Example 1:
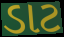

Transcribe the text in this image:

ડાટ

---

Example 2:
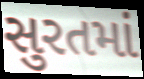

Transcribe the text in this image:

સુરતમાં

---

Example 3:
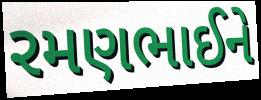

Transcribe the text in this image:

રમણભાઈને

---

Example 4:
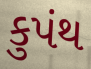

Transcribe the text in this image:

કુપંથ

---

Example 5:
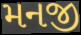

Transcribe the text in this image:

મનજી